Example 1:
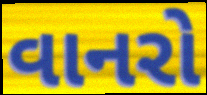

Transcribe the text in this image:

વાનરો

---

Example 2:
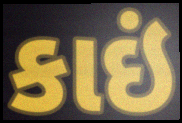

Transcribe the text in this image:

કાઇં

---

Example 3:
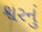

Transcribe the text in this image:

શ્વરનું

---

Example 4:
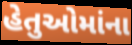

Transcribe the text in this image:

હેતુઓમાંના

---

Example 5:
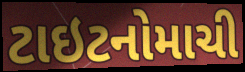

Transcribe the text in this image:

ટાઇટનોમાચી